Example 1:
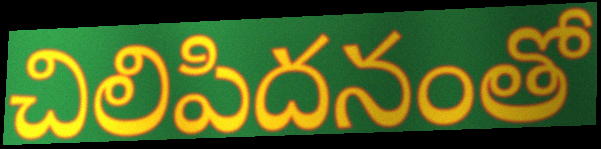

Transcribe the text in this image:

చిలిపిదనంతో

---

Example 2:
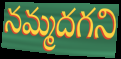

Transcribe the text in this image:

నమ్మదగని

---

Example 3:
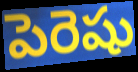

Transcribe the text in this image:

పెరెషు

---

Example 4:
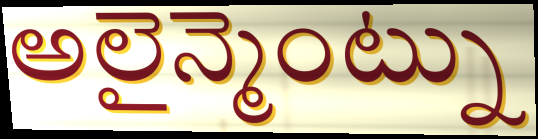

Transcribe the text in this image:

అలైన్మెంట్ను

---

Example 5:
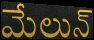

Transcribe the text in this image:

మేలున్